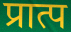
प्रात्प